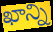
ఖాన్ని